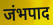
जंभपाद